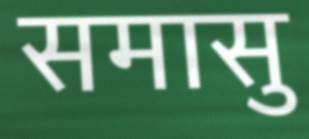
समासु